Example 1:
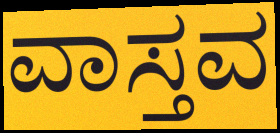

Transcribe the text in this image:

ವಾಸ್ತವ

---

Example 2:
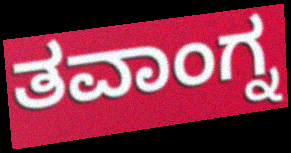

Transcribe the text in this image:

ತವಾಂಗ್ನ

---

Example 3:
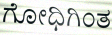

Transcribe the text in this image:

ಗೋಧಿಗಿಂತ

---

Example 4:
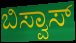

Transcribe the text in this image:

ಬಿಸ್ವಾಸ್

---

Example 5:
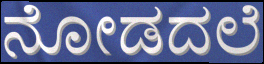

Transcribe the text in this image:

ನೋಡದಲೆ